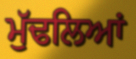
ਮੁੱਢਲਿਆਂ